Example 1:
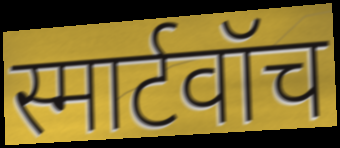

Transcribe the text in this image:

स्मार्टवॉच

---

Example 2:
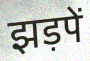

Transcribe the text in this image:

झड़पें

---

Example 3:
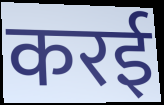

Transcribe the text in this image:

करई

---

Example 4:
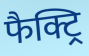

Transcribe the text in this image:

फैक्ट्रि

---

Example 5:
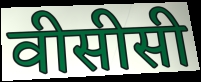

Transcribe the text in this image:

वीसीसी